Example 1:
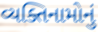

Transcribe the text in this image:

વ્યક્તિનામોનું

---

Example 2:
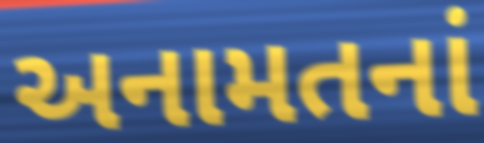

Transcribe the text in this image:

અનામતનાં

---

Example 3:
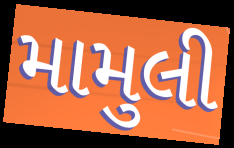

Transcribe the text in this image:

મામુલી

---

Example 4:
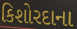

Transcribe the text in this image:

કિશોરદાના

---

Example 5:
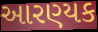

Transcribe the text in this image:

આરણ્યક